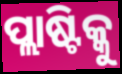
ପ୍ଲାଷ୍ଟିକ୍କୁ